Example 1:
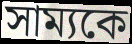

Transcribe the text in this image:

সাম্যকে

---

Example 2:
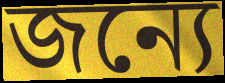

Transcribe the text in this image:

জন্যে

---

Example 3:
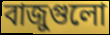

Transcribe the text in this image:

বাজুগুলো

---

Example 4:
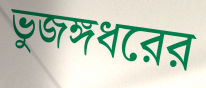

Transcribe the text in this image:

ভুজঙ্গধরের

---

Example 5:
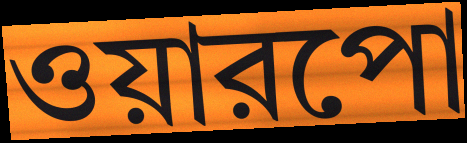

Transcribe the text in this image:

ওয়ারপো